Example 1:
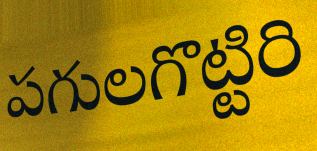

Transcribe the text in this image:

పగులగొట్టిరి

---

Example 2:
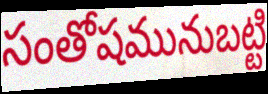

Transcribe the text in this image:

సంతోషమునుబట్టి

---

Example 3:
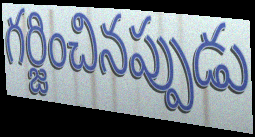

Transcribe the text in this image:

గర్జించినప్పుడు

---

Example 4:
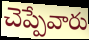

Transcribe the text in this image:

చెప్పేవారు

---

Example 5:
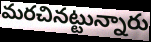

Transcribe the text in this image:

మరచినట్టున్నారు